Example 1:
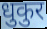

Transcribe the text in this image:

धुकुर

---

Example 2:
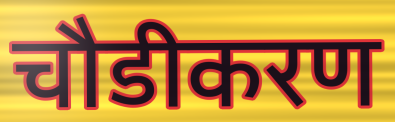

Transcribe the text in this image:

चौडीकरण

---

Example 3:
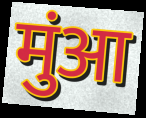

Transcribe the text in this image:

मुंआ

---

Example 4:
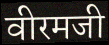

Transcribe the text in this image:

वीरमजी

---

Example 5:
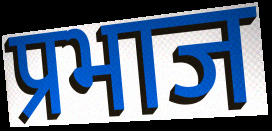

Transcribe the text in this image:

प्रभाज